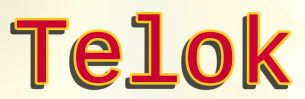
Telok